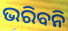
ଭରିବନି